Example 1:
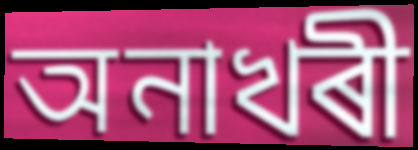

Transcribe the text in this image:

অনাখৰী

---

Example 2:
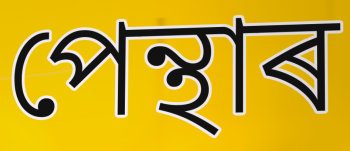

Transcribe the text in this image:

পেন্থাৰ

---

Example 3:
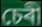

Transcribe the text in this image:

চেৰী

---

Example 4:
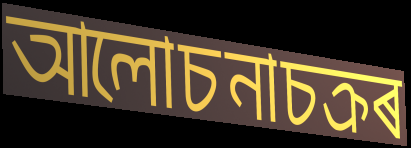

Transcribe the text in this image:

আলোচনাচক্ৰৰ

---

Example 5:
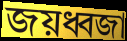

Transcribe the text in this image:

জয়ধ্বজা